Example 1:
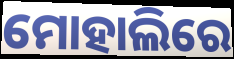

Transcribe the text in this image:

ମୋହାଲିରେ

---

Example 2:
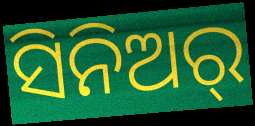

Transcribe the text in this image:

ସିନିଅର୍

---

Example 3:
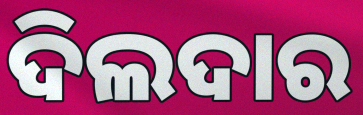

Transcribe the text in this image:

ଦିଲଦାର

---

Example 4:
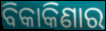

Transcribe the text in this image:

ବିକାକିଣାର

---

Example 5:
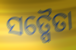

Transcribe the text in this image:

ସତ୍ପୈତା